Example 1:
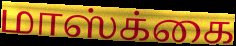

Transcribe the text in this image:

மாஸ்க்கை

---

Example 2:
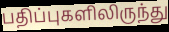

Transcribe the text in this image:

பதிப்புகளிலிருந்து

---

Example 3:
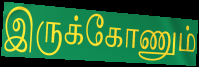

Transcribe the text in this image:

இருக்கோணும்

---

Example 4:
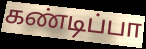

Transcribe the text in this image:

கண்டிப்பா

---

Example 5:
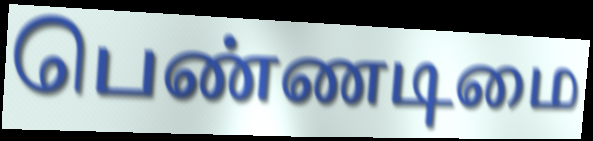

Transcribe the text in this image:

பெண்ணடிமை